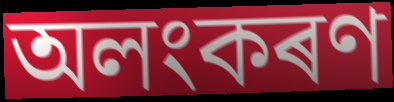
অলংকৰণ